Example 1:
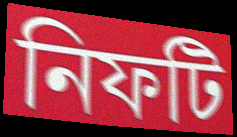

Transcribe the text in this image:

নিফটি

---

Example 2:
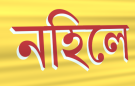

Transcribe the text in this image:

নহিলে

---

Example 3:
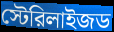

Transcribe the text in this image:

স্টেরিলাইজড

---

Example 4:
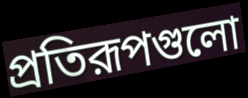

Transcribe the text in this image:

প্রতিরূপগুলো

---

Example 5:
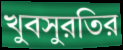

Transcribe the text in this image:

খুবসুরতির